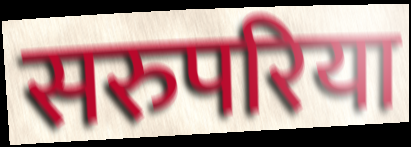
सरुपरिया